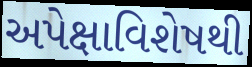
અપેક્ષાવિશેષથી